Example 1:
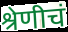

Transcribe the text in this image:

श्रेणीचं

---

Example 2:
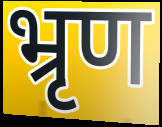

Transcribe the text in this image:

भ्रृण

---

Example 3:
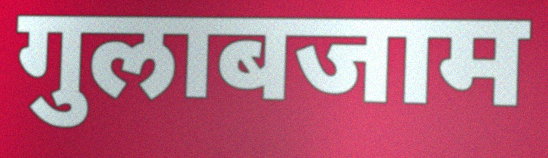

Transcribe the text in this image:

गुलाबजाम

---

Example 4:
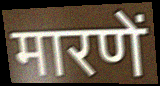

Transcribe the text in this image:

मारणें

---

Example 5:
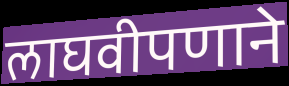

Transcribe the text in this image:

लाघवीपणाने